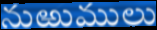
నుఱుములు